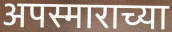
अपस्माराच्या